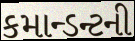
કમાન્ડન્ટની